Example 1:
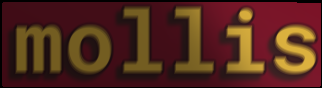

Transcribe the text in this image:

mollis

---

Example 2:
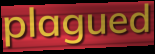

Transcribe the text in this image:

plagued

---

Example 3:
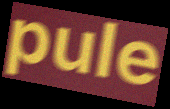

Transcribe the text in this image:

pule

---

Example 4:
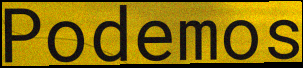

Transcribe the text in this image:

Podemos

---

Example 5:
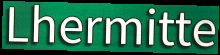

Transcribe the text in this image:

Lhermitte